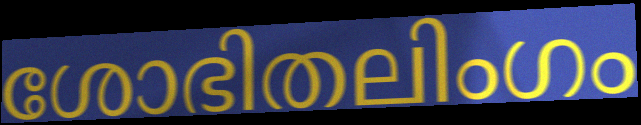
ശോഭിതലിംഗം